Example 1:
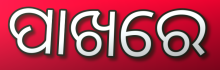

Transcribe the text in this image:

ପାଖରେ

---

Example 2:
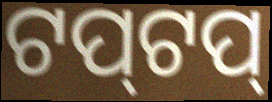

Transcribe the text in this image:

ଟପ୍‌ଟପ୍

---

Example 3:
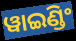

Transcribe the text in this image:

ୱାଇଣ୍ଡିଂ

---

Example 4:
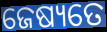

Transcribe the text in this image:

ଜେଷ୍ୟତେ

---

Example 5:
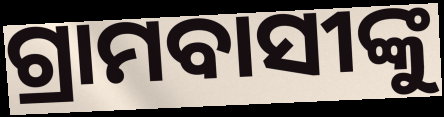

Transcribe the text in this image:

ଗ୍ରାମବାସୀଙ୍କୁ